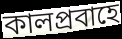
কালপ্রবাহে